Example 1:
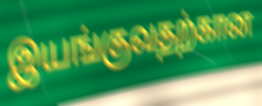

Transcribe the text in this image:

இயங்குவதற்கான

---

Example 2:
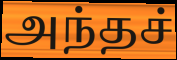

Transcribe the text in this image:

அந்தச்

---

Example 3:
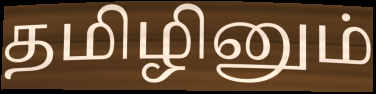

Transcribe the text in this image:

தமிழினும்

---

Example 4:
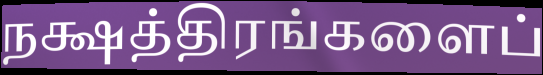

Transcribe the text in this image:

நக்ஷத்திரங்களைப்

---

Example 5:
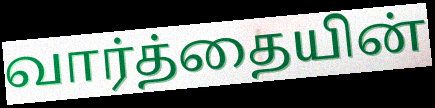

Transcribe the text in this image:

வார்த்தையின்